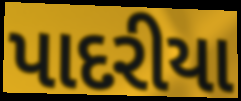
પાદરીયા